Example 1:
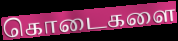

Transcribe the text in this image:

கொடைகளை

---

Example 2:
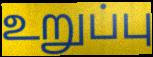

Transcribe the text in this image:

உறுப்பு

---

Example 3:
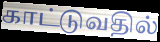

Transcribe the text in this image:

காட்டுவதில்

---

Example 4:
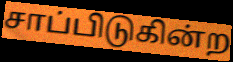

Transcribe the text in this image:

சாப்பிடுகின்ற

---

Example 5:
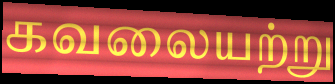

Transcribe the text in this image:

கவலையற்று